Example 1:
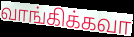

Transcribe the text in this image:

வாங்கிக்கவா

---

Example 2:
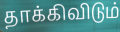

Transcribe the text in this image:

தாக்கிவிடும்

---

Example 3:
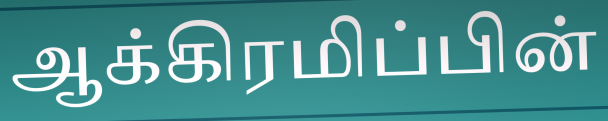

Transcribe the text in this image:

ஆக்கிரமிப்பின்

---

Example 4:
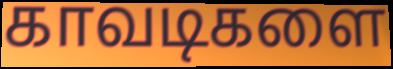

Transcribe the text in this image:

காவடிகளை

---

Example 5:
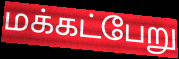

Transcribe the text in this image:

மக்கட்பேறு